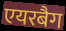
एयरबैग